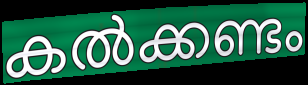
കൽക്കണ്ടം